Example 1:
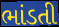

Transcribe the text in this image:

ભાંડતી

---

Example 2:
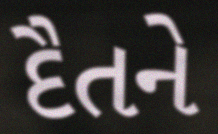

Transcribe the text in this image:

દૈતને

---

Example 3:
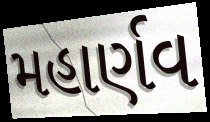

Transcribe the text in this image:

મહાર્ણવ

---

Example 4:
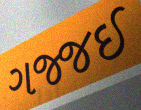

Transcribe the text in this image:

ગજ્જઈ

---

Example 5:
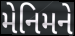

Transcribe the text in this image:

મેનિમને